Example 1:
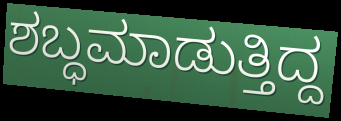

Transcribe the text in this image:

ಶಬ್ಧಮಾಡುತ್ತಿದ್ದ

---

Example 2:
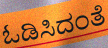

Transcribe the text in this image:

ಓಡಿಸಿದಂತೆ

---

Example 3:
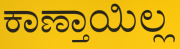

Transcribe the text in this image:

ಕಾಣ್ತಾಯಿಲ್ಲ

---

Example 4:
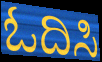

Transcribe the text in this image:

ಓದಿಸಿ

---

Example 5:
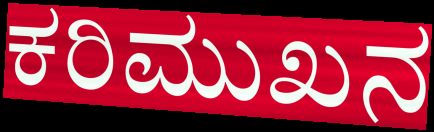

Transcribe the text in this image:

ಕರಿಮುಖನ